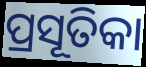
ପ୍ରସୂତିକା